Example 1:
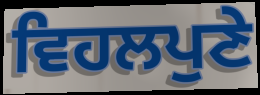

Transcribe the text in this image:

ਵਿਹਲਪੁਣੇ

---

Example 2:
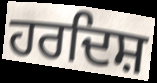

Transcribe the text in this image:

ਹਰਦਿਸ਼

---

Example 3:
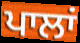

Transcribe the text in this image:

ਪਾਲਾਂ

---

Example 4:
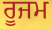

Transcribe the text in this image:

ਰੂਜਮ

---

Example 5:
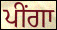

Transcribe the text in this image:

ਪੀਂਗਾ